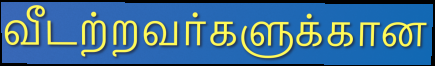
வீடற்றவர்களுக்கான